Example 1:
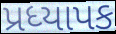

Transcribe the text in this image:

પ્રધ્યાપક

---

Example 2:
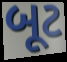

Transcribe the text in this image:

બૂટ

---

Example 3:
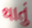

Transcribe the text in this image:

થાતું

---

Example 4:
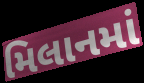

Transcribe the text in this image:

મિલાનમાં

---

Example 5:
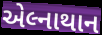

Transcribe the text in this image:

એલ્નાથાન